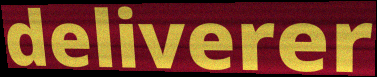
deliverer